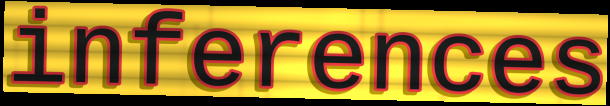
inferences